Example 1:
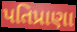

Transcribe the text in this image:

પતિપ્રાણા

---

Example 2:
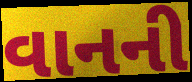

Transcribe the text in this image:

વાનની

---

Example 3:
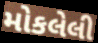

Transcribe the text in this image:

મોકલેલી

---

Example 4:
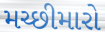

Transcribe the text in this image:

મચ્છીમારો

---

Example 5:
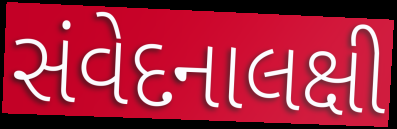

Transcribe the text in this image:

સંવેદનાલક્ષી